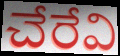
చేరేవి